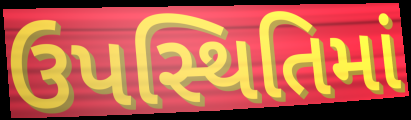
ઉપસ્થિતિમાં